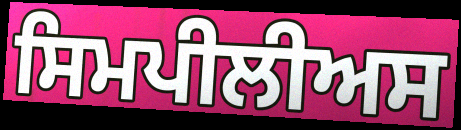
ਸਿਮਪੀਲੀਅਸ